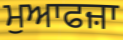
ਮੁਆਫਜ਼ਾ